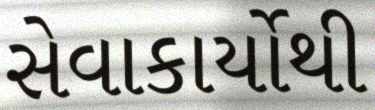
સેવાકાર્યોથી